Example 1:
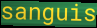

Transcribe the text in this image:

sanguis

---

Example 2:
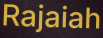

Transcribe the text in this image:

Rajaiah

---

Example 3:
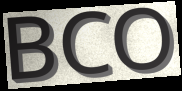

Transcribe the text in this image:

BCO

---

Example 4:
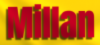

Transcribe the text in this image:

Millan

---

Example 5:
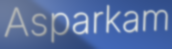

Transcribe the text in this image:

Asparkam